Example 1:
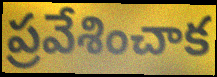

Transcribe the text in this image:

ప్రవేశించాక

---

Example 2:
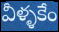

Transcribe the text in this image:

వీళ్ళకేం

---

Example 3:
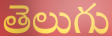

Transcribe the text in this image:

తెలుగు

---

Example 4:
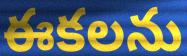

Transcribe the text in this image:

ఈకలను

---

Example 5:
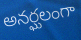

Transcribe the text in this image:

అనర్ఘలంగా